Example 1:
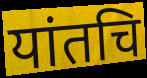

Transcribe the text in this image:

यांतचि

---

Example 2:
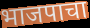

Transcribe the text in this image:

भाजपाचा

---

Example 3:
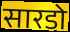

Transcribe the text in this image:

सारडो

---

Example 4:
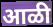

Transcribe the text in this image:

आळी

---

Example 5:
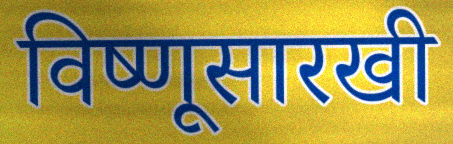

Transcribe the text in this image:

विष्णूसारखी